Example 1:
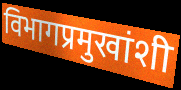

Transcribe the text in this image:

विभागप्रमुखांशी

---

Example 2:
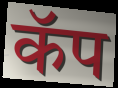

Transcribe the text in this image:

कॅप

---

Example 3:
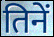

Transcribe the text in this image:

तिनें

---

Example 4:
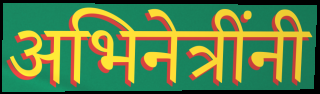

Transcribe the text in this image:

अभिनेत्रींनी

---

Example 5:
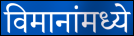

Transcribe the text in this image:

विमानांमध्ये